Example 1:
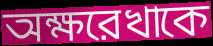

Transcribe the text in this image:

অক্ষরেখাকে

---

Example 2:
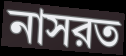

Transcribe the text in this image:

নাসরত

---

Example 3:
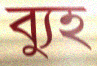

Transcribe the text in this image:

ব্যুহ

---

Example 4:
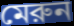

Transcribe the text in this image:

মেরুন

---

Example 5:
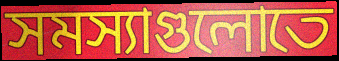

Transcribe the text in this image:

সমস্যাগুলোতে